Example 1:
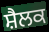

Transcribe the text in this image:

ਸ਼ੈਲਕ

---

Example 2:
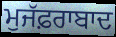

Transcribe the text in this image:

ਮੁਜੱਫ਼ਰਾਬਾਦ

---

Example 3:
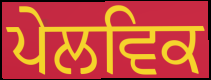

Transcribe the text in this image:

ਪੇਲਵਿਕ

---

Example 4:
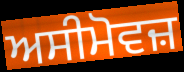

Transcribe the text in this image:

ਅਸੀਮੋਵਜ਼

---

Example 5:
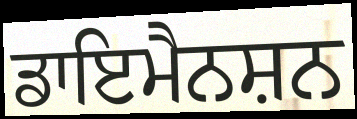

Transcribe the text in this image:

ਡਾਇਮੈਨਸ਼ਨ